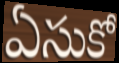
ఏసుకో